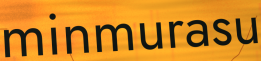
minmurasu